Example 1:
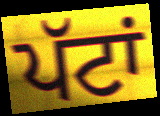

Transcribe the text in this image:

ਪੱਟਾਂ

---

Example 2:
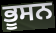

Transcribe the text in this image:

ਭੂਸਨ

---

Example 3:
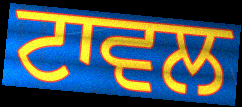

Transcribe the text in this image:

ਟਾਵਲ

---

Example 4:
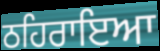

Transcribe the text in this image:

ਠਹਿਰਾਇਆ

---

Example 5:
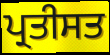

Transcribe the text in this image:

ਪ੍ਰਤੀਸਤ